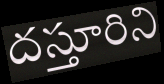
దస్తూరిని